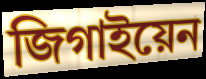
জিগাইয়েন